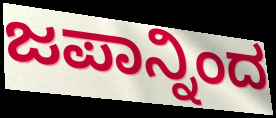
ಜಪಾನ್ನಿಂದ